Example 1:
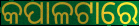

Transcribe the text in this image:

କପାଳଟାରେ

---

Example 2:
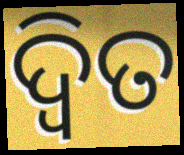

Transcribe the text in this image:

ଦ୍ବିତ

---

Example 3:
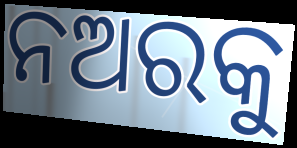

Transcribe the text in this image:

ନଅରକୁ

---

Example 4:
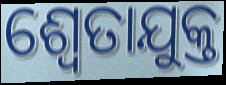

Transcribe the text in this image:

ଶ୍ଵେତାଯୁକ୍ତ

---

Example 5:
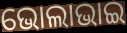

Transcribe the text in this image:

ଭୋଲାଭାଇ